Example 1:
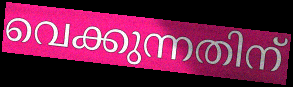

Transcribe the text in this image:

വെക്കുന്നതിന്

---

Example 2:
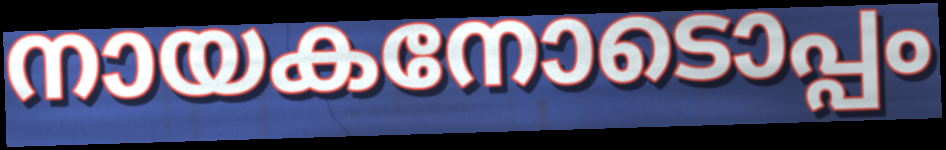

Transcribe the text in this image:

നായകനോടൊപ്പം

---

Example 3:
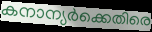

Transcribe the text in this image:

കനാന്യർക്കെതിരെ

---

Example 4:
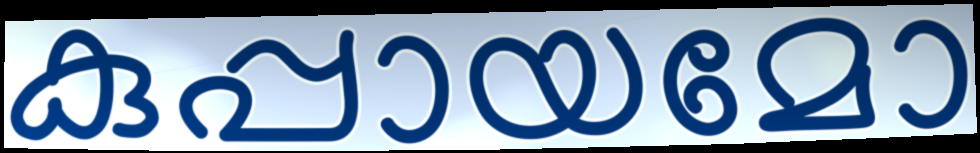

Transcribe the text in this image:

കുപ്പായമോ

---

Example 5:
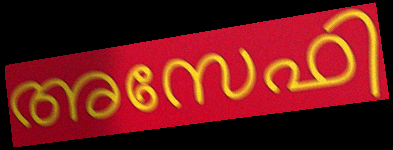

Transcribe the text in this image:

അസേഫി